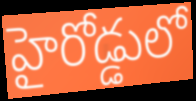
హైరోడ్డులో